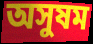
অসুষম